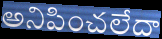
అనిపించలేదా